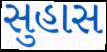
સુહાસ